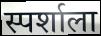
स्पर्शाला